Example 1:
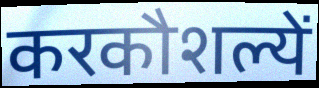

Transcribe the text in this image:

करकौशल्यें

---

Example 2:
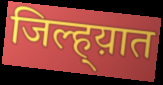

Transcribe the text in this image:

जिल्ह्य़ात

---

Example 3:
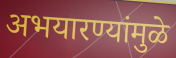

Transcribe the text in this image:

अभयारण्यांमुळे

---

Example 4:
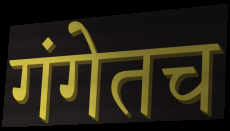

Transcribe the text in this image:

गंगेतच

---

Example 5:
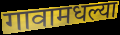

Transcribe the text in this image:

गावामधल्या